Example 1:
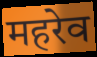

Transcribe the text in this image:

महरेव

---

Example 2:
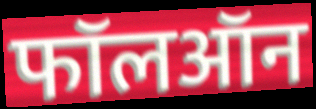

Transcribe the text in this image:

फॉलऑन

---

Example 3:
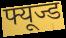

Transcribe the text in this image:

फ्यूज्ड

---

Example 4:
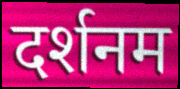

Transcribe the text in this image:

दर्शनम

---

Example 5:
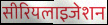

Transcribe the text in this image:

सीरियलाइजेशन